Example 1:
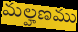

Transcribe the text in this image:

మల్హణము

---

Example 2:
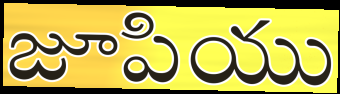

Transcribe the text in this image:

జూపియు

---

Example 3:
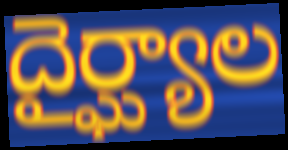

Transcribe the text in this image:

దైర్ఘ్యాల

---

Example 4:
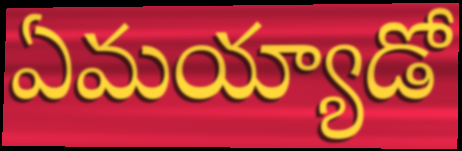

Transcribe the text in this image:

ఏమయ్యాడో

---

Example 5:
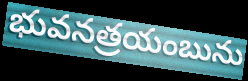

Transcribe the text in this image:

భువనత్రయంబును